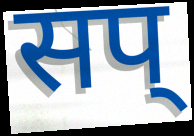
सप्